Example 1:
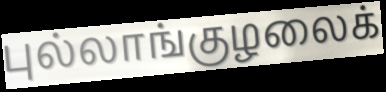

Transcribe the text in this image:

புல்லாங்குழலைக்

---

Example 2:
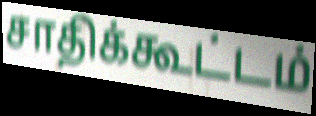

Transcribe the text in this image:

சாதிக்கூட்டம்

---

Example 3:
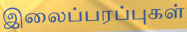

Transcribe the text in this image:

இலைப்பரப்புகள்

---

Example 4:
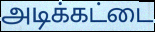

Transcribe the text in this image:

அடிக்கட்டை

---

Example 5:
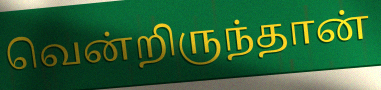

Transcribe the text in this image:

வென்றிருந்தான்